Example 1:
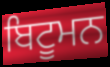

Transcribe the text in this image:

ਬਿਟੂਮਨ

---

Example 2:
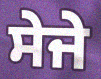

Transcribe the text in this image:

ਸੇਜੇ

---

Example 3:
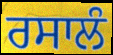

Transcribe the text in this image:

ਰਸਾਲੰ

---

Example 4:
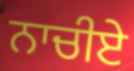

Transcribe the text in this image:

ਨਾਚੀਏ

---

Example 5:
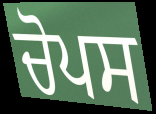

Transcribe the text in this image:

ਚੋਪਸ